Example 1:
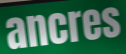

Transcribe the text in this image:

ancres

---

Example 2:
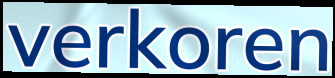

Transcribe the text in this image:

verkoren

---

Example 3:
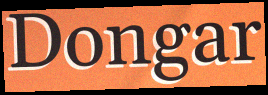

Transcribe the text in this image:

Dongar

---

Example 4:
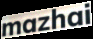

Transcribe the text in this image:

mazhai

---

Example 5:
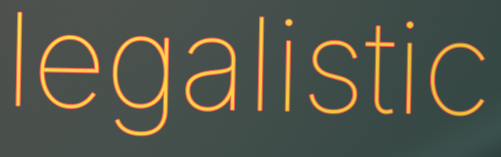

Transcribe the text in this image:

legalistic